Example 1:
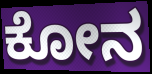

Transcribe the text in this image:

ಕೋನ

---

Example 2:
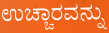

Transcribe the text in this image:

ಉಚ್ಚಾರವನ್ನು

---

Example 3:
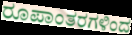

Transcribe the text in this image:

ರೂಪಾಂತರಗಳಿಂದ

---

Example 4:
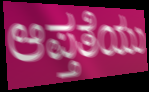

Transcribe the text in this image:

ಆಪ್ತತೆಯು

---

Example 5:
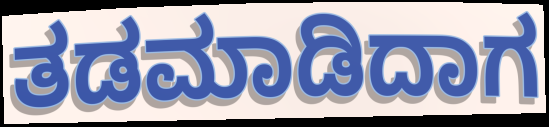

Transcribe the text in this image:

ತಡಮಾಡಿದಾಗ